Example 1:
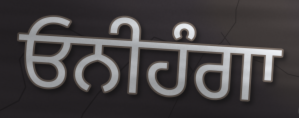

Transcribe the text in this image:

ਓਨੀਹੰਗਾ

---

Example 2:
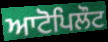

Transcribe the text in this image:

ਆਟੋਪਿਲੌਟ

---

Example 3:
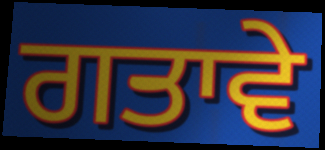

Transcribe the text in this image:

ਗਤਾਵੇ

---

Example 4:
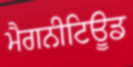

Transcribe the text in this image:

ਮੈਗਨੀਟਿਊਡ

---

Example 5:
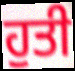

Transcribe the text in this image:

ਹੁਤੀ